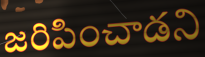
జరిపించాడని